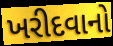
ખરીદવાનો